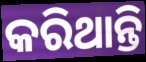
କରିଥାନ୍ତି